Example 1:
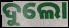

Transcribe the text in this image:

ଦୁଲୋ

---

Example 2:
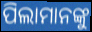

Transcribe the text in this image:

ପିଲାମାନଙ୍କୁ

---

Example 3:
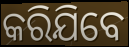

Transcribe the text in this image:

କରିଯିବେ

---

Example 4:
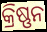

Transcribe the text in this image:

କ୍ରିଷ୍ଣନ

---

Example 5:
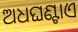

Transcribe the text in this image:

ଅଧଘଣ୍ଟାଏ